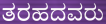
ತರಹದವರು